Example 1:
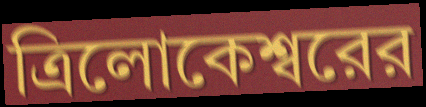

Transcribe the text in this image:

ত্রিলোকেশ্বরের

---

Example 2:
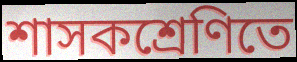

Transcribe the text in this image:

শাসকশ্রেণিতে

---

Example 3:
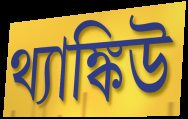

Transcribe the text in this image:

থ্যাঙ্কিউ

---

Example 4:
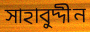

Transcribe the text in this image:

সাহাবুদ্দীন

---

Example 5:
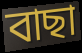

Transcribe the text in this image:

বাছা